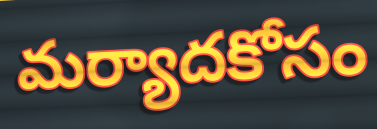
మర్యాదకోసం